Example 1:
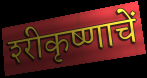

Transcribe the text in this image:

श्रीकृष्णाचें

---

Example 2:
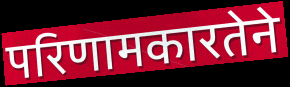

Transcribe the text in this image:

परिणामकारतेने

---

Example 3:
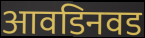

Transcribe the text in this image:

आवडिनवड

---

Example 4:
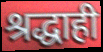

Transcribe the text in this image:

श्रद्धाही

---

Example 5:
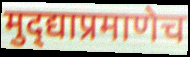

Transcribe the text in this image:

मुद्द्याप्रमाणेच